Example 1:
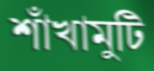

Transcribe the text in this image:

শাঁখামুটি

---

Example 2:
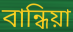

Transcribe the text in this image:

বান্ধিয়া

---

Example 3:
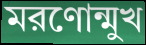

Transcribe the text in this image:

মরণোন্মুখ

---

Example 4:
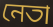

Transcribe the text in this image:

নেতা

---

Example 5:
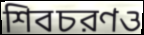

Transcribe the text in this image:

শিবচরণও